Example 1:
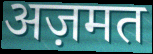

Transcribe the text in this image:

अज़मत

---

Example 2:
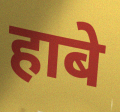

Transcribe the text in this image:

हाबे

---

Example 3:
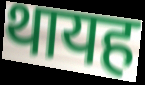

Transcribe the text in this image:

थायह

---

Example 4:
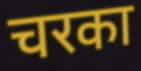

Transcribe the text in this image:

चरका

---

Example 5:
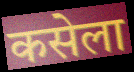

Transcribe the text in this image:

कसेला